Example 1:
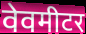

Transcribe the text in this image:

वेवमीटर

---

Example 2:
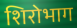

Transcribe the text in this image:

शिरोभाग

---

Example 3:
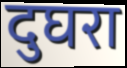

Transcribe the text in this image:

दुघरा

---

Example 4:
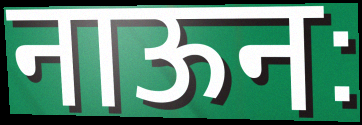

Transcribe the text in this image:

नाऊनः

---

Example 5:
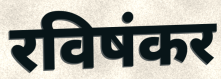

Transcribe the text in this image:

रविषंकर